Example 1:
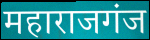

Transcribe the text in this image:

महाराजगंज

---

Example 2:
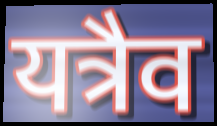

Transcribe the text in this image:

यत्रैव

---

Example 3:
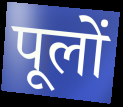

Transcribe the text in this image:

पूलों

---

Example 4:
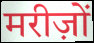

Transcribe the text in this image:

मरीज़ों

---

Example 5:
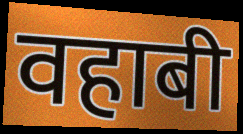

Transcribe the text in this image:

वहाबी